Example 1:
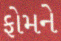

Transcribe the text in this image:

ફોમને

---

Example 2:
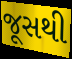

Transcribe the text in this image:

જૂસથી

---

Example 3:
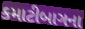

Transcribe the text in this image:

કમાટીબાગના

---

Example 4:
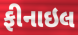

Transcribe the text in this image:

ફીનાઇલ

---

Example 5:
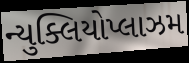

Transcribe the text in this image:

ન્યુક્લિયોપ્લાઝમ